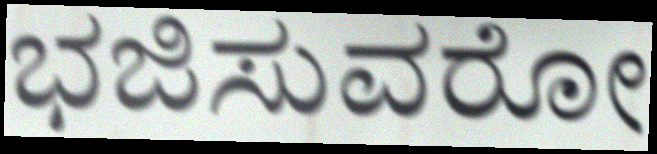
ಭಜಿಸುವರೋ